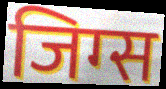
जिग्स